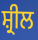
ਸ਼੍ਰੀਲ